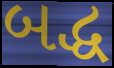
બદ્ધ